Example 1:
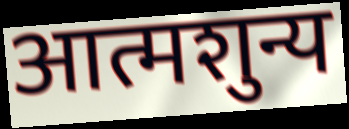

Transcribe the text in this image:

आत्मशुन्य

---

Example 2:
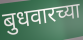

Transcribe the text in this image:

बुधवारच्या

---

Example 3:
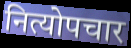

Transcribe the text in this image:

नित्योपचार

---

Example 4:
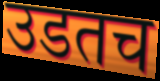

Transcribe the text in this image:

उडतच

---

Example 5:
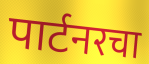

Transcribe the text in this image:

पार्टनरचा